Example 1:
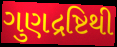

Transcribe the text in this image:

ગુણદ્રષ્ટિથી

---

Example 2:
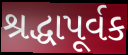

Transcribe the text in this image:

શ્રદ્ધાપૂર્વક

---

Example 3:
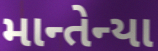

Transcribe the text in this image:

માન્તેન્યા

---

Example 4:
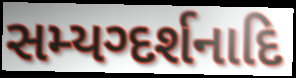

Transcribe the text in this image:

સમ્યગ્દર્શનાદિ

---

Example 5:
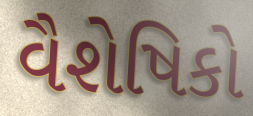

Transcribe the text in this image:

વૈશેષિકો